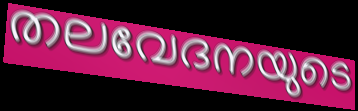
തലവേദനയുടെ